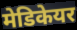
मेडिकेयर